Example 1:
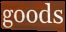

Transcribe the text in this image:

goods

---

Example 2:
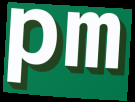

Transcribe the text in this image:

pm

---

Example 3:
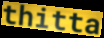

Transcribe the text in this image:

thitta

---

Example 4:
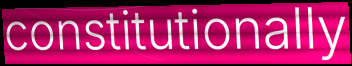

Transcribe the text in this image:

constitutionally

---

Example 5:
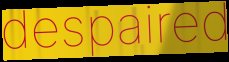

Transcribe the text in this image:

despaired